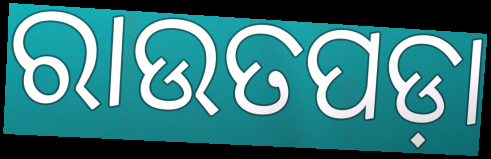
ରାଉତପଡ଼ା